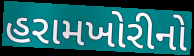
હરામખોરીનો